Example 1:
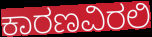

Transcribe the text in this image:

ಕಾರಣವಿರಲಿ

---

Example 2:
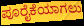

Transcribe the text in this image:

ಪೂರೈಕೆಯಾಗಲು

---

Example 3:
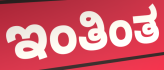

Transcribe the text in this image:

ಇಂತಿಂತ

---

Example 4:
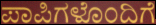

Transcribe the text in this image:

ಪಾಪಿಗಳೊಂದಿಗೆ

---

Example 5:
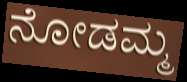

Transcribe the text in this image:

ನೋಡಮ್ಮ